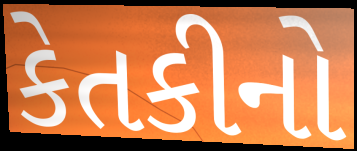
કેતકીનો